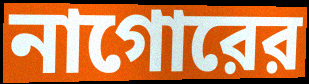
নাগোরের